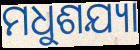
ମଧୁଶଯ୍ୟା